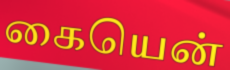
கையென்